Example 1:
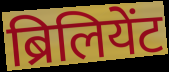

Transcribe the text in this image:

ब्रिलियेंट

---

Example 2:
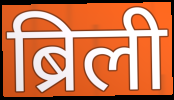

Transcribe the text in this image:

ब्रिली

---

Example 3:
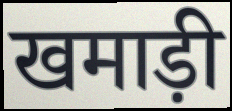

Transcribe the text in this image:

खमाड़ी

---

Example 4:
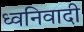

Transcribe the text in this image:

ध्वनिवादी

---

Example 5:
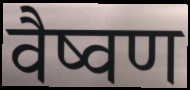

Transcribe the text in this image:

वैष्वण